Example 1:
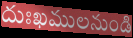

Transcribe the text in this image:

దుఃఖములనుండి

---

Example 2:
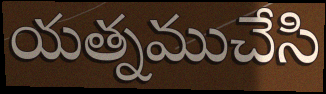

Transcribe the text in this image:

యత్నముచేసి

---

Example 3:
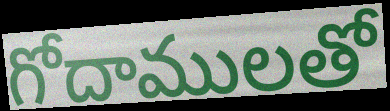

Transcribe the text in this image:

గోదాములతో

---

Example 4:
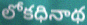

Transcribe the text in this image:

లోకధినాథ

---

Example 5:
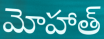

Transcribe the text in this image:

మోహాత్